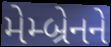
મેમ્બ્રેનને